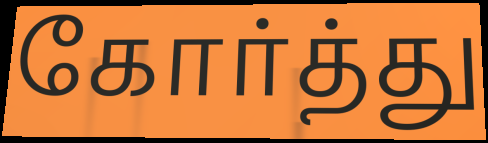
கோர்த்து